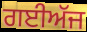
ਗਈਅੱਜ